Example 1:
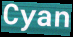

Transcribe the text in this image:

Cyan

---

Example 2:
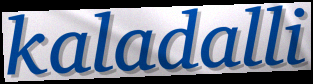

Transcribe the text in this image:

kaladalli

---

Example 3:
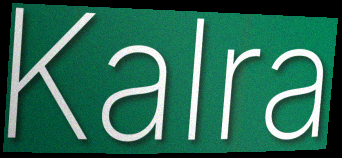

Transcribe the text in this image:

Kalra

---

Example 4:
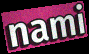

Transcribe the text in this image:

nami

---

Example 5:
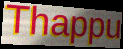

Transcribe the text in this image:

Thappu